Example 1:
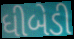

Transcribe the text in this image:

ધીબેડી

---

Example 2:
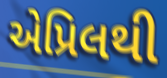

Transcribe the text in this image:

એપ્રિલથી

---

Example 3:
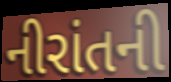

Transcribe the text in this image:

નીરાંતની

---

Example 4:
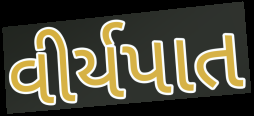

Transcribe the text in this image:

વીર્યપાત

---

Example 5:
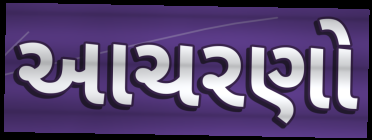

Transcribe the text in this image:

આચરણો